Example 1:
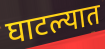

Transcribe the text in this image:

घाटल्यात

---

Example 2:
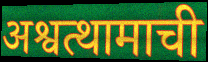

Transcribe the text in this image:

अश्वत्थामाची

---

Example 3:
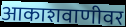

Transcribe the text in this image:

आकाशवाणीवर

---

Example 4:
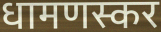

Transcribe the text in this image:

धामणस्कर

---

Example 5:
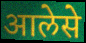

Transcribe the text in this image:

आलेसे